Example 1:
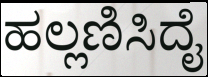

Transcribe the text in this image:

ಹಲ್ಲಣಿಸಿದೈ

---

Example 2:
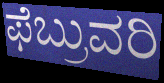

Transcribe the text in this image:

ಫೆಬ್ರುವರಿ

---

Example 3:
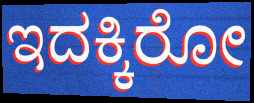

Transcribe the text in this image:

ಇದಕ್ಕಿರೋ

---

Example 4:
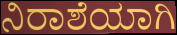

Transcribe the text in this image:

ನಿರಾಶೆಯಾಗಿ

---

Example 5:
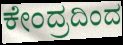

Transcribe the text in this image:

ಕೇಂದ್ರದಿಂದ